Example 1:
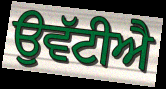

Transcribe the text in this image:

ਉਵੱਟੀਐ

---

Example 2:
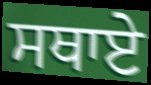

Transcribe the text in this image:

ਸਥਾਏ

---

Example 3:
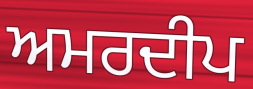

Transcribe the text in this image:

ਅਮਰਦੀਪ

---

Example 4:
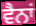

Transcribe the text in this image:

ਵੈਨਾਂ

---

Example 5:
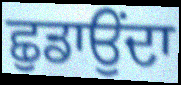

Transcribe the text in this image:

ਛੁਡਾਉਂਦਾ